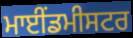
ਮਾਈਂਡਮੀਸਟਰ